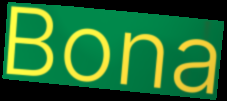
Bona